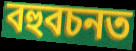
বহুবচনত